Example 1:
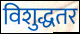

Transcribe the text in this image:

विशुद्धतर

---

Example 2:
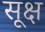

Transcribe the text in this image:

सूक्ष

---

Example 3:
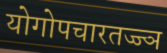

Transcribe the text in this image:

योगोपचारतज्ज्ञ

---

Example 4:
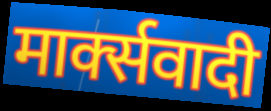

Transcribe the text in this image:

मार्क्‍सवादी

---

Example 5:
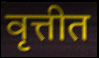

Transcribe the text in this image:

वृत्तीत